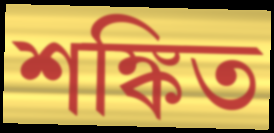
শঙ্কিত